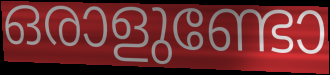
ഒരാളുണ്ടോ